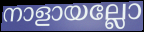
നാളായല്ലോ